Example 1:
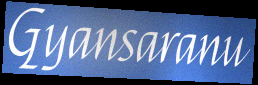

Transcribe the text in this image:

Gyansaranu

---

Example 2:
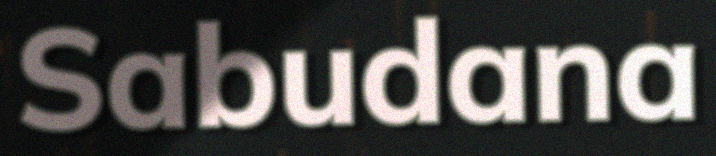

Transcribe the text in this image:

Sabudana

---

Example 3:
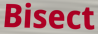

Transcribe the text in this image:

Bisect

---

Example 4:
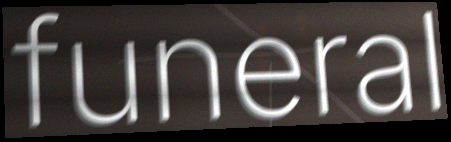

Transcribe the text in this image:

funeral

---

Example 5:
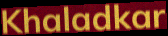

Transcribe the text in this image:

Khaladkar